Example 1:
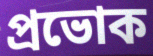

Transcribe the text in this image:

প্রভোক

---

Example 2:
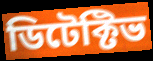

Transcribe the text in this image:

ডিটেক্টিভ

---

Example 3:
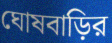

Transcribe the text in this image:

ঘোষবাড়ির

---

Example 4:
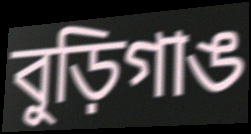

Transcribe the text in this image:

বুড়িগাঙ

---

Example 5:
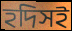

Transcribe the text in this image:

হদিসই